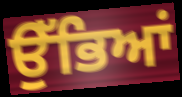
ਉੱਭਿਆਂ